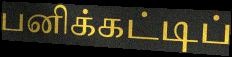
பனிக்கட்டிப்